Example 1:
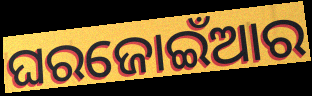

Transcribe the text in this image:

ଘରଜୋଇଁଆର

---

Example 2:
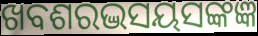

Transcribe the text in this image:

ଖବଶରଦ୍ଭସୟସଙ୍କଜ୍ଞ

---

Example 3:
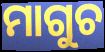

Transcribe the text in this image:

ମାଗୁଚ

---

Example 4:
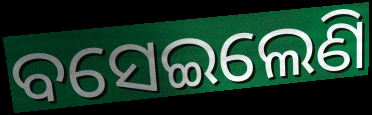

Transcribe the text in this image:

ବସେଇଲେଣି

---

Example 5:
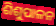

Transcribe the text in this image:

ଶିଶୁପାଳନ